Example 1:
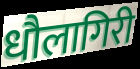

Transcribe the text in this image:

धौलागिरी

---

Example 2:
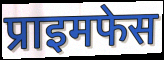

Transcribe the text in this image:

प्राइमफेस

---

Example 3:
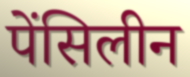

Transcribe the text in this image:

पेंसिलीन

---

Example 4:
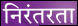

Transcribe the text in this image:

निरंतरता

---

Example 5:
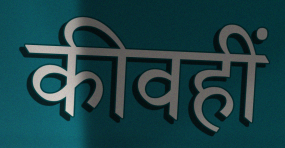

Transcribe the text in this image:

कीवहीं